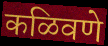
कळिवणे